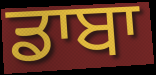
ਡਾਬਾ